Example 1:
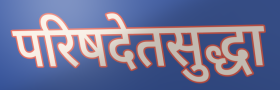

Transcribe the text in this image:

परिषदेतसुद्धा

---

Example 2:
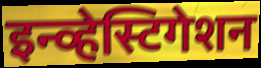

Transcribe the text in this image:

इन्व्हेस्टिगेशन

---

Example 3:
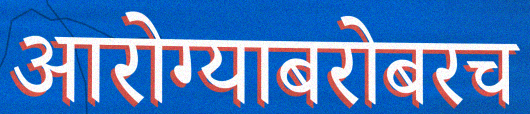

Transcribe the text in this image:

आरोग्याबरोबरच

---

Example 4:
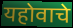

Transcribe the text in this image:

यहोवाचे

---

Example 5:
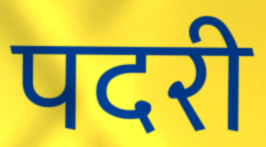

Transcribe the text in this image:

पदरी